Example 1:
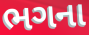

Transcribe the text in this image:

ભગના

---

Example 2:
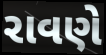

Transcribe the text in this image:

રાવણે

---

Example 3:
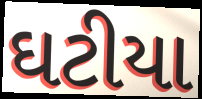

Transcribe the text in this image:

ઘટીયા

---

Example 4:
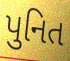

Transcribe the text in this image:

પુનિત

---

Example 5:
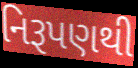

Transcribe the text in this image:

નિરૂપણથી